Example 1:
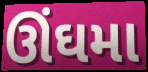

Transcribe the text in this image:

ઊંઘમા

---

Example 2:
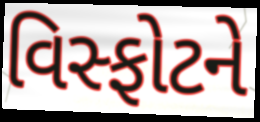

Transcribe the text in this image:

વિસ્ફોટને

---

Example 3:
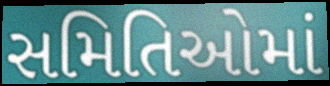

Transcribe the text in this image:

સમિતિઓમાં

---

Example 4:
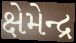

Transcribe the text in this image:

ક્ષેમેન્દ્ર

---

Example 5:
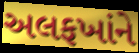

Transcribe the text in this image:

અલફખાંને